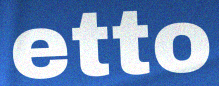
etto